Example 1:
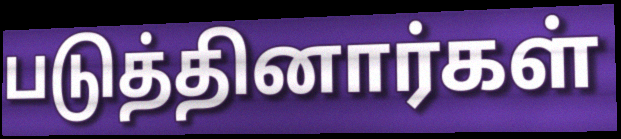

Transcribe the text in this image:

படுத்தினார்கள்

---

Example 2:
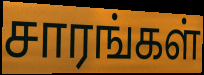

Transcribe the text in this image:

சாரங்கள்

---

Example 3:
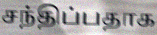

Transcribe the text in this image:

சந்திப்பதாக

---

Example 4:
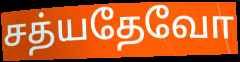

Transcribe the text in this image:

சத்யதேவோ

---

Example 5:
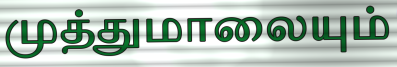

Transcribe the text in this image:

முத்துமாலையும்